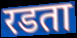
रडता